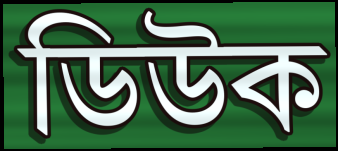
ডিউক